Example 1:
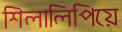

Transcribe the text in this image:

শিলালিপিয়ে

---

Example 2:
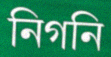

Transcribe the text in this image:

নিগনি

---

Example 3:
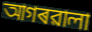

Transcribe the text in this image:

আগৰৱালা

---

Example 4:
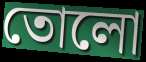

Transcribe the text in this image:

তোলো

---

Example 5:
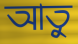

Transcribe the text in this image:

আতু